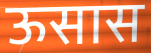
ऊसास